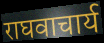
राघवाचार्य